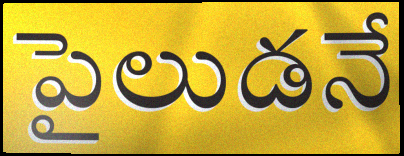
పైలుడనే